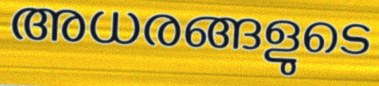
അധരങ്ങളുടെ